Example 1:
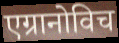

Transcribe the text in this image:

एग्रानोविच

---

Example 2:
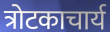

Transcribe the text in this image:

त्रोटकाचार्य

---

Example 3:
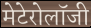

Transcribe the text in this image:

मेटेरोलॉजी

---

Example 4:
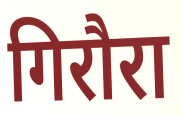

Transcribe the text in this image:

गिरौरा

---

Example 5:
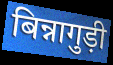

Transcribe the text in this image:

बिन्नागुड़ी